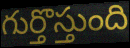
గుర్తొస్తుంది